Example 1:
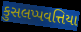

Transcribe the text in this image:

કુસલપ્પવત્તિયા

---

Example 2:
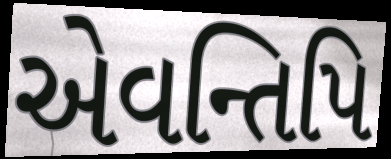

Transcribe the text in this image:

એવન્તિપિ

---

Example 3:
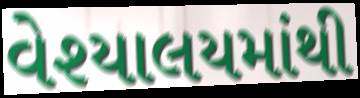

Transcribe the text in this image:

વેશ્યાલયમાંથી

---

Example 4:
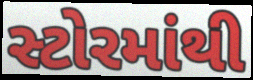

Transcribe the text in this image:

સ્ટોરમાંથી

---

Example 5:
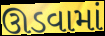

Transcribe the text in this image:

ઊડવામાં